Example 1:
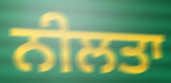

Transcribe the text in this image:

ਨੀਲਤਾ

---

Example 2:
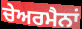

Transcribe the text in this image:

ਚੇਅਰਮੈਨਾਂ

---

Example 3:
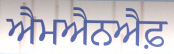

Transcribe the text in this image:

ਐਮਐਨਐਫ਼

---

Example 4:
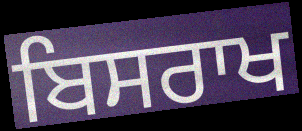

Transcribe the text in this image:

ਬਿਸਰਾਖ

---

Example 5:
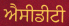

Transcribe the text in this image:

ਐਸੀਡੀਟੀ